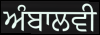
ਅੰਬਾਲਵੀ